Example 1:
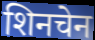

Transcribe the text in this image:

शिनचेन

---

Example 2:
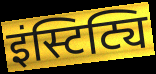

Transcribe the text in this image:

इंस्टिट्यि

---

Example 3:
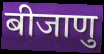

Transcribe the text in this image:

बीजाणु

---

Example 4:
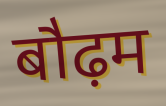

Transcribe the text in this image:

बौढ़म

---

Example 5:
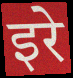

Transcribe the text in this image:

इरे